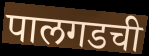
पालगडची